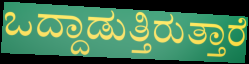
ಒದ್ದಾಡುತ್ತಿರುತ್ತಾರೆ